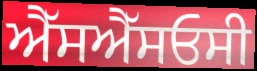
ਐੱਸਐੱਸਓਸੀ